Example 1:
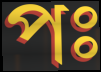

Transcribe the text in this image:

পঃ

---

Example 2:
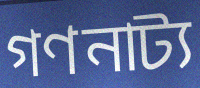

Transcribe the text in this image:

গণনাট্য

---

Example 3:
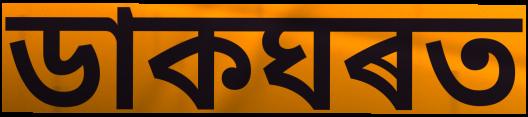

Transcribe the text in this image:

ডাকঘৰত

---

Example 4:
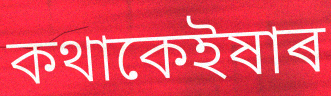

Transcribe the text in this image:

কথাকেইষাৰ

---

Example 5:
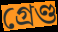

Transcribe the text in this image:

গ্ৰেণ্ড